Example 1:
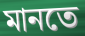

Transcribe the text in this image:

মানতে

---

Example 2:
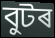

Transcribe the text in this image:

বুটৰ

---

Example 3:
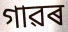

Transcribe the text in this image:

গাৱৰ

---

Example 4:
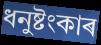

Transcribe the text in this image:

ধনুষ্টংকাৰ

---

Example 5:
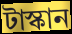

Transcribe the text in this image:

টাস্কান